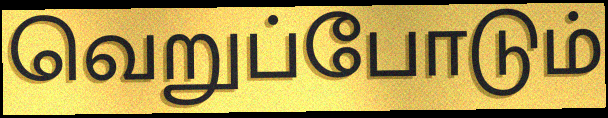
வெறுப்போடும்